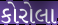
કોરોલા